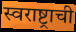
स्वराष्ट्राची